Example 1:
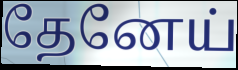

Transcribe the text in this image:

தேனேய்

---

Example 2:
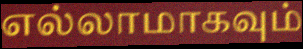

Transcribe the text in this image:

எல்லாமாகவும்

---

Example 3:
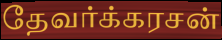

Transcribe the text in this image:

தேவர்க்கரசன்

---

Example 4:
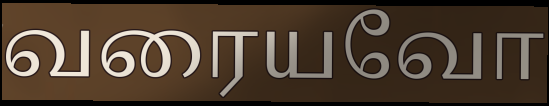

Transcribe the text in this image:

வரையவோ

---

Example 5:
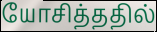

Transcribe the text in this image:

யோசித்ததில்